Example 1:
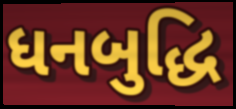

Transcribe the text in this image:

ધનબુદ્ધિ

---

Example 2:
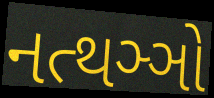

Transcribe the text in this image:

નત્થઞ્ઞો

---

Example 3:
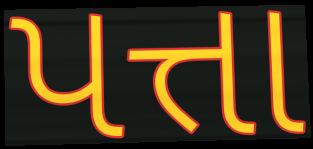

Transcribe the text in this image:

પત્તા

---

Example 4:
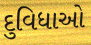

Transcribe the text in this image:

દુવિધાઓ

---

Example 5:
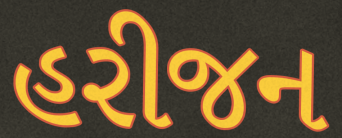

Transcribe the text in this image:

હરીજન